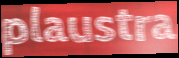
plaustra